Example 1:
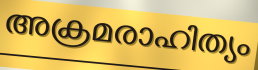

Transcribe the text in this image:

അക്രമരാഹിത്യം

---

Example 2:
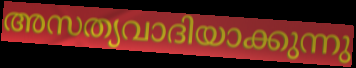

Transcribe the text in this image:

അസത്യവാദിയാക്കുന്നു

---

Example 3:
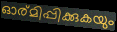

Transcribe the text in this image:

ഓര്മിപ്പിക്കുകയും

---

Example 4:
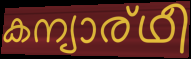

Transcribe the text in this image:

കന്യാര്ഥീ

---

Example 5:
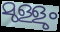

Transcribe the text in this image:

മുള്ളും